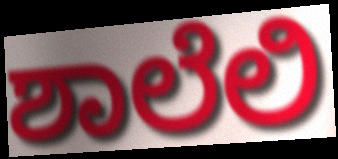
ಶಾಲೆಲಿ